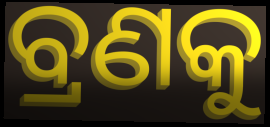
ବ୍ରଣକୁ